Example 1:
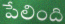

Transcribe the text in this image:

పేలింది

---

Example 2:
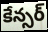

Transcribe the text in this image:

కేన్సర్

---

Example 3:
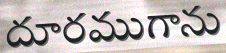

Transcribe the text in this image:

దూరముగాను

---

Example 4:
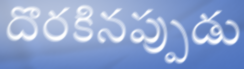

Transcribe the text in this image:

దొరకినప్పుడు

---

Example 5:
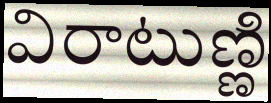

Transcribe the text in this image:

విరాటుణ్ణి